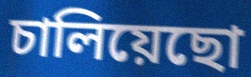
চালিয়েছো